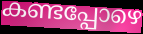
കണ്ടപ്പോഴെ